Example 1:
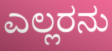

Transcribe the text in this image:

ಎಲ್ಲರನು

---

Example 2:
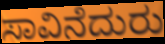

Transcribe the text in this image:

ಸಾವಿನೆದುರು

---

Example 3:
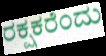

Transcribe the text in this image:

ರಕ್ಷಕರೆಂದು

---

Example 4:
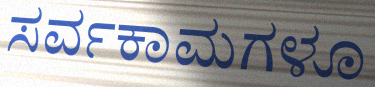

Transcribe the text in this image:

ಸರ್ವಕಾಮಗಳೂ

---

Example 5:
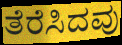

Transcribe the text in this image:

ತೆರೆಸಿದವು